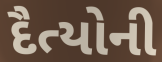
દૈત્યોની